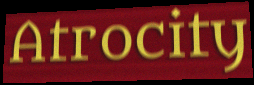
Atrocity